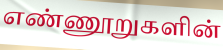
எண்ணூறுகளின்